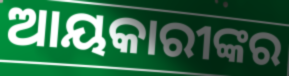
ଆୟକାରୀଙ୍କର